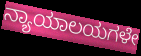
ನ್ಯಾಯಾಲಯಗಳೇ